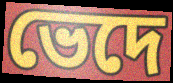
ভেদে